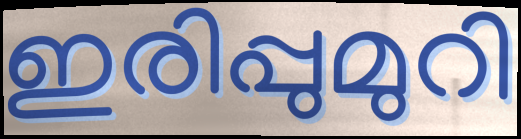
ഇരിപ്പുമുറി